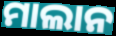
ମାଲାନ